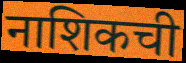
नाशिकची